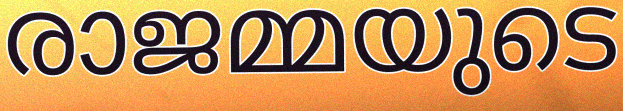
രാജമ്മയുടെ